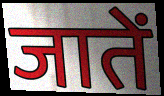
जातें